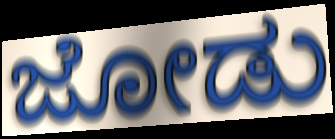
ಜೋಡು